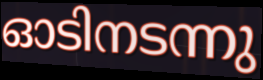
ഓടിനടന്നു